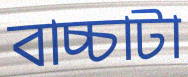
বাচ্চাটা